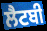
ਲੈਟਬੀ